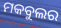
ମକବୁଲର